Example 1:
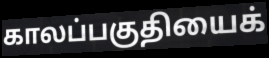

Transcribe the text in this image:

காலப்பகுதியைக்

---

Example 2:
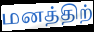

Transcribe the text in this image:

மனத்திற்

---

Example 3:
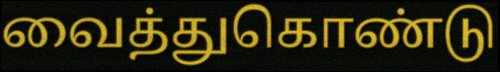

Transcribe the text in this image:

வைத்துகொண்டு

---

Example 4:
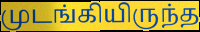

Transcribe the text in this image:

முடங்கியிருந்த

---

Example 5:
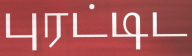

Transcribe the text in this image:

புரட்டிட